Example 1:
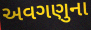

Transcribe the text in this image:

અવગણુના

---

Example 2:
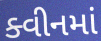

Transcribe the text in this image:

ક્વીનમાં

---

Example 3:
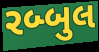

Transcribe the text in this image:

રબ્બુલ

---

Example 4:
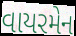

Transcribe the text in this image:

વાયરમેન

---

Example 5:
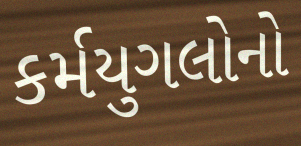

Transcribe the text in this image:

કર્મયુગલોનો